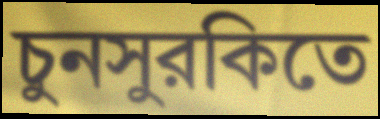
চুনসুরকিতে